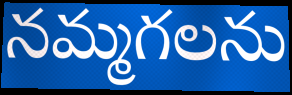
నమ్మగలను